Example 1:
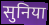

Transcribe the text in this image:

सुनिया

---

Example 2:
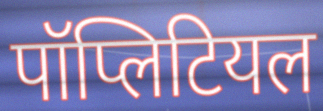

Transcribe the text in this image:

पॉप्लिटियल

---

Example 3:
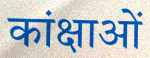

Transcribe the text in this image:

कांक्षाओं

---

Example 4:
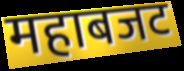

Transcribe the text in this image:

महाबजट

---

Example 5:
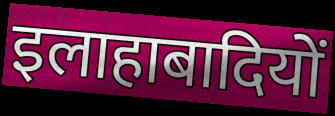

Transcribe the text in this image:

इलाहाबादियों